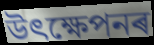
উৎক্ষেপনৰ